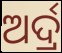
ଅର୍ଦ୍ର